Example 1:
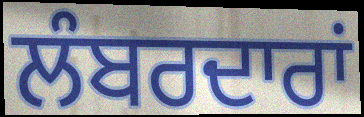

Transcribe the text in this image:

ਲੰਬਰਦਾਰਾਂ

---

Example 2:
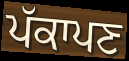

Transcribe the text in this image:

ਪੱਕਾਪਣ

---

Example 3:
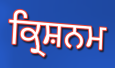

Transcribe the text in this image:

ਕ੍ਰਿਸ਼ਨਮ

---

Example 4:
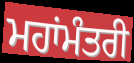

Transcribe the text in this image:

ਮਹਾਂਮੰਤਰੀ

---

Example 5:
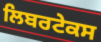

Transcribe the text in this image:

ਲਿਬਰਟੇਕਸ